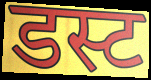
डस्ट